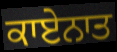
ਕਾਏਨਾਤ